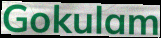
Gokulam